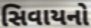
સિવાયનો